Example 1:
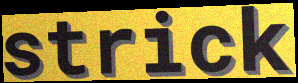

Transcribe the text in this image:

strick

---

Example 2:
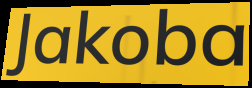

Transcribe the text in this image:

Jakoba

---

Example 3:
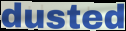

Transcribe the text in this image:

dusted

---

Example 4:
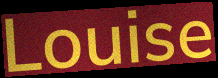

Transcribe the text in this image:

Louise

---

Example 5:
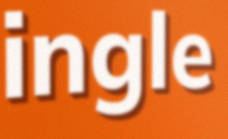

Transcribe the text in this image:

ingle